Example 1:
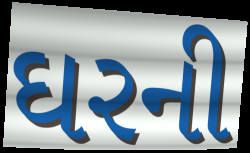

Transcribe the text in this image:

ઘરની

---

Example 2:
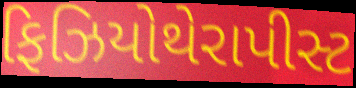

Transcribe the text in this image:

ફિઝિયોથેરાપીસ્ટ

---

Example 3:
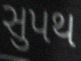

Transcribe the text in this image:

સુપથ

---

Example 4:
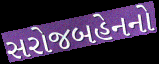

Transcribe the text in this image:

સરોજબહેનનો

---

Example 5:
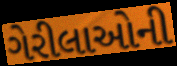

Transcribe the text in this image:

ગેરીલાઓની